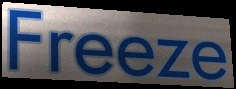
Freeze